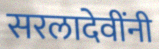
सरलादेवींनी